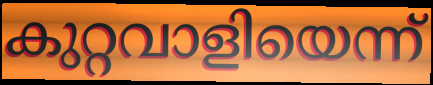
കുറ്റവാളിയെന്ന്